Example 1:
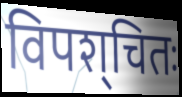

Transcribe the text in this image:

विपश्चितः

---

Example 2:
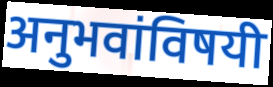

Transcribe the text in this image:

अनुभवांविषयी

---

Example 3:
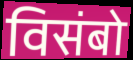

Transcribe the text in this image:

विसंबो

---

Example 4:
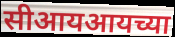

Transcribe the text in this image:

सीआयआयच्या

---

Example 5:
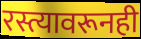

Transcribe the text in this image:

रस्त्यावरूनही